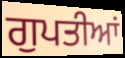
ਗੁਪਤੀਆਂ